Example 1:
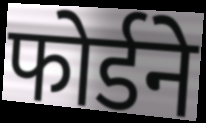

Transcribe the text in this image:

फोर्डने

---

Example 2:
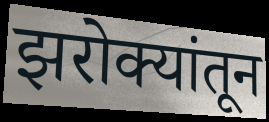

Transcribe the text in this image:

झरोक्यांतून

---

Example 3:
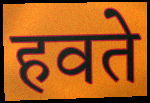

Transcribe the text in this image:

हवते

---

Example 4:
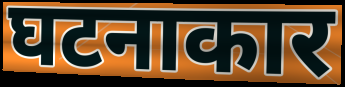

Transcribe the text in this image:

घटनाकार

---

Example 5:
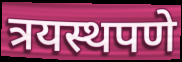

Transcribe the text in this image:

त्रयस्थपणे